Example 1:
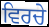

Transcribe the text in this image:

ਵਿਰਚੇ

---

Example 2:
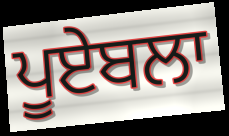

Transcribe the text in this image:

ਪੂਏਬਲਾ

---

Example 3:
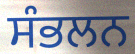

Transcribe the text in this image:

ਸੰਭਲਨ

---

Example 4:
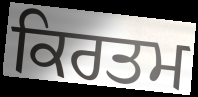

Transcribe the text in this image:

ਕਿਰਤਮ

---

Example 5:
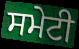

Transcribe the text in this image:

ਸਮੇਟੀ